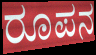
ರೂಪನ